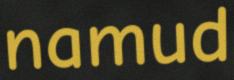
namud